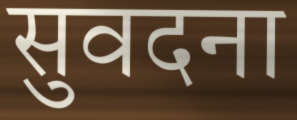
सुवदना